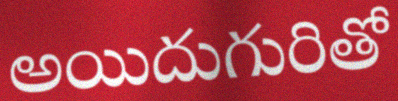
అయిదుగురితో